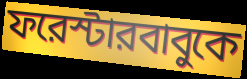
ফরেস্টারবাবুকে